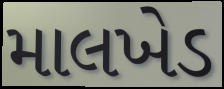
માલખેડ